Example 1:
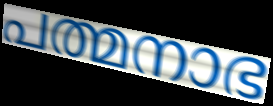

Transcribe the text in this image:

പത്മനാഭ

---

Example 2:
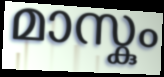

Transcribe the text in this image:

മാസ്കും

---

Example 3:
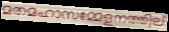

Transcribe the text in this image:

മതമഹാസമ്മേളനത്തില്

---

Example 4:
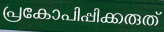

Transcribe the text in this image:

പ്രകോപിപ്പിക്കരുത്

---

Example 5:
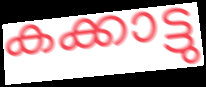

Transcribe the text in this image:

കക്കാട്ടു